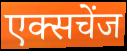
एक्सचेंज